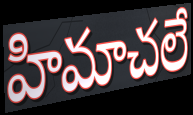
హిమాచలే